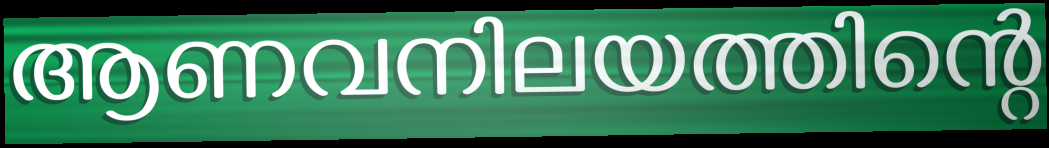
ആണവനിലയത്തിന്റെ